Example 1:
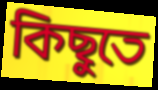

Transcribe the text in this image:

কিছুতে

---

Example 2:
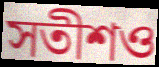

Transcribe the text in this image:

সতীশও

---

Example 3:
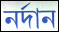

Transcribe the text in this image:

নর্দান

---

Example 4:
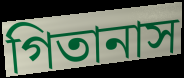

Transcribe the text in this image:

গিতানাস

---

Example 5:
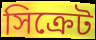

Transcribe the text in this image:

সিক্রেট